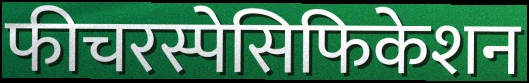
फीचरस्पेसिफिकेशन